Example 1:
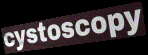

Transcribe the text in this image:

cystoscopy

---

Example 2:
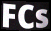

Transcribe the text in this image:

FCs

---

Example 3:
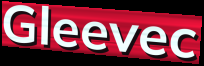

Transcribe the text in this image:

Gleevec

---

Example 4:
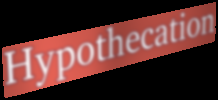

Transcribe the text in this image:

Hypothecation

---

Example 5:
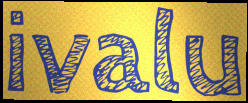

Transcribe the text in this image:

ivalu